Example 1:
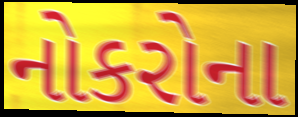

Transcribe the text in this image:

નોકરોના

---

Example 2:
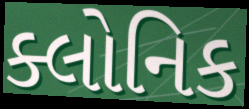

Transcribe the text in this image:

ક્લોનિક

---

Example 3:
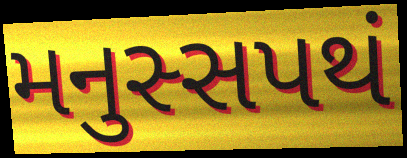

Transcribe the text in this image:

મનુસ્સપથં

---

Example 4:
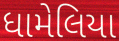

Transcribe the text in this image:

ધામેલિયા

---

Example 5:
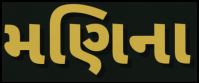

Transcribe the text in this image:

મણિના